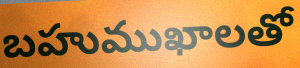
బహుముఖాలతో